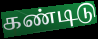
கண்டிடு